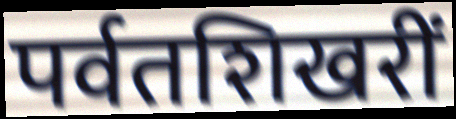
पर्वतशिखरीं